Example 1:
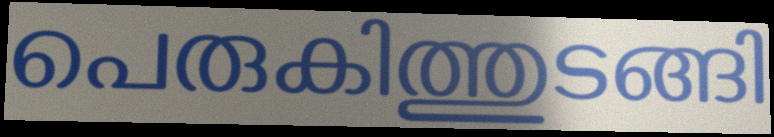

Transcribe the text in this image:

പെരുകിത്തുടങ്ങി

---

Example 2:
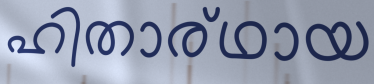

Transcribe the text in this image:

ഹിതാര്ഥായ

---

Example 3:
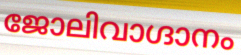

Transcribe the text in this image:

ജോലിവാഗ്ദാനം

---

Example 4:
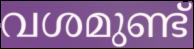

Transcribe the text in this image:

വശമുണ്ട്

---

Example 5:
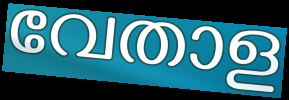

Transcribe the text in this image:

വേതാള